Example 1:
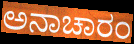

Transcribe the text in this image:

ಅನಾಚಾರಂ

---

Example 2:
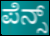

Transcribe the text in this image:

ಪೆನ್ಸ್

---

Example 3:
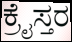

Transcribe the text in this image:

ಕ್ರೈಸ್ತರ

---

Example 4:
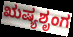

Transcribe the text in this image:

ಋಷ್ಯಶೃಂಗ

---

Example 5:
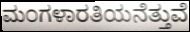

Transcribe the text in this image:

ಮಂಗಳಾರತಿಯನೆತ್ತುವೆ